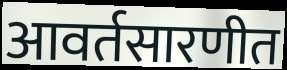
आवर्तसारणीत